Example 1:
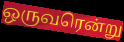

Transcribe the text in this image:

ஒருவரென்று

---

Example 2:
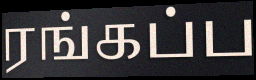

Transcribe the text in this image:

ரங்கப்ப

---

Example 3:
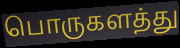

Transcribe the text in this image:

பொருகளத்து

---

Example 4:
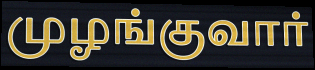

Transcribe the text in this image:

முழங்குவார்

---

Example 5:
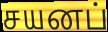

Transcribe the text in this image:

சயனப்